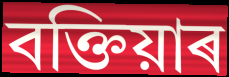
বক্তিয়াৰ